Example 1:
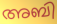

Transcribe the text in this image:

അബി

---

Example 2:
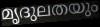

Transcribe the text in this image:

മൃദുലതയും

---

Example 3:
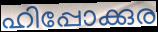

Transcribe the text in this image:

ഹിപ്പോക്കുര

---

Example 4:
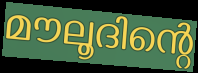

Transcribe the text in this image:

മൗലൂദിന്റെ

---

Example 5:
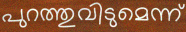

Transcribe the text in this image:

പുറത്തുവിടുമെന്ന്